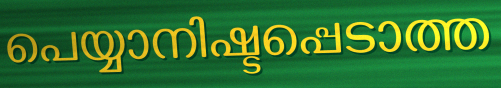
പെയ്യാനിഷ്ടപ്പെടാത്ത